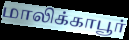
மாலிக்காபூர்